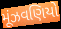
મૂંઝવણિયો